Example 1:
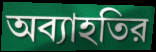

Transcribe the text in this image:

অব্যাহতির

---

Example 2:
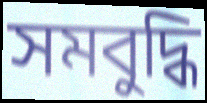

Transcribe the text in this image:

সমবুদ্ধি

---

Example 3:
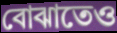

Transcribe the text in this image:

বোঝাতেও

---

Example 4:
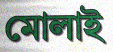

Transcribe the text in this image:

মোলাই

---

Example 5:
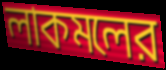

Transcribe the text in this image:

লাকমলের